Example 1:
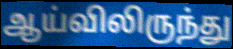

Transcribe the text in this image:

ஆய்விலிருந்து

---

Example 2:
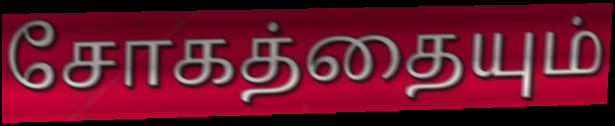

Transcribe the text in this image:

சோகத்தையும்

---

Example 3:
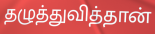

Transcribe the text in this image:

தழுத்துவித்தான்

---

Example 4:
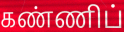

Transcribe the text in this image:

கண்ணிப்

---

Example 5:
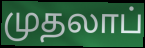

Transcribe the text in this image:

முதலாப்